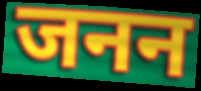
जनन